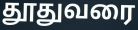
தூதுவரை